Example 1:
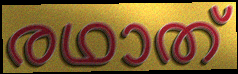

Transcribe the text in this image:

രഥാത്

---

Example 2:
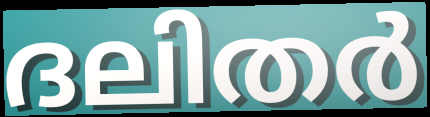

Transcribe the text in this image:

ദലിതർ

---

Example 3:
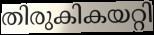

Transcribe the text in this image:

തിരുകികയറ്റി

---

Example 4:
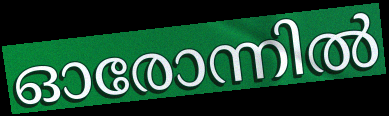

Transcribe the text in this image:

ഓരോന്നിൽ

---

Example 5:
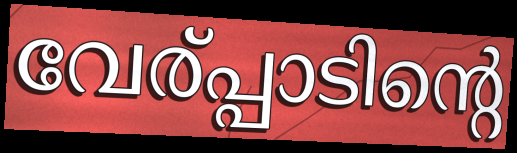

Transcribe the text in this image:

വേര്പ്പാടിന്റെ